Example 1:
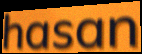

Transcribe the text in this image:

hasan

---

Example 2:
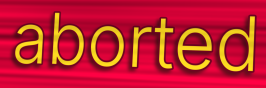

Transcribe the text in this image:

aborted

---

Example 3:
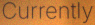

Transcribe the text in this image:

Currently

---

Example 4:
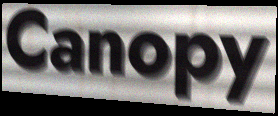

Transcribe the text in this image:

Canopy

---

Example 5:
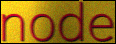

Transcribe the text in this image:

node